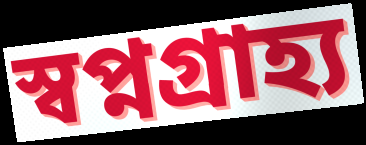
স্বপ্নগ্রাহ্য